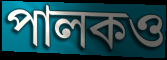
পালকও